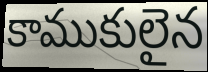
కాముకులైన